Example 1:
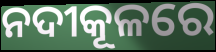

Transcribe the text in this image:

ନଦୀକୂଳରେ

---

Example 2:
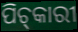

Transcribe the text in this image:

ପିଚ୍‌କାରୀ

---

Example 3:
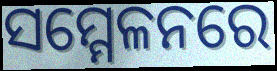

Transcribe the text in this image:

ସମ୍ମେଳନରେ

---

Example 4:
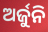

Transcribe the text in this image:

ଅର୍ଜୁନି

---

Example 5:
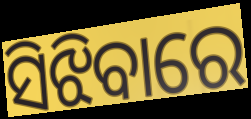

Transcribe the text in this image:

ସିଝିବାରେ